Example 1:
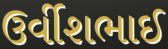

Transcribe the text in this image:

ઉર્વીશભાઈ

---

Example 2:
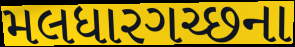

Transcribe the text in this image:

મલધારગચ્છના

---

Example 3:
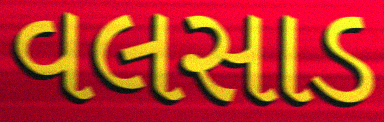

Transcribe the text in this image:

વલસાડ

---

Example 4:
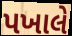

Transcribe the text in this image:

પખાલે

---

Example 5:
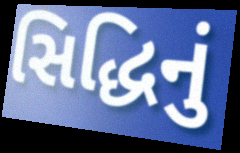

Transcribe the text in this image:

સિદ્ધિનું